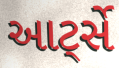
આર્ટ્સે